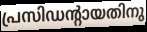
പ്രസിഡന്റായതിനു